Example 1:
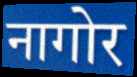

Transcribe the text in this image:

नागोर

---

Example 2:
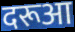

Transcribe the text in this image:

दरूआ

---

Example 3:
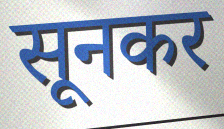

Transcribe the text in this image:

सूनकर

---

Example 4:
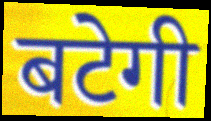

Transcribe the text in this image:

बटेगी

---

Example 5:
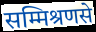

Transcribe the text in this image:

सम्मिश्रणसे